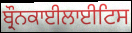
ਬ੍ਰੌਨਕਾਈਲਾਈਟਿਸ